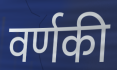
वर्णकी